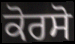
ਕੋਰਸੋ